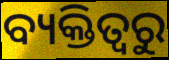
ବ୍ୟକ୍ତିତ୍ଵରୁ